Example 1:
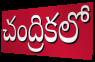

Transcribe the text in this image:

చంద్రికలో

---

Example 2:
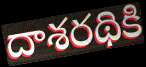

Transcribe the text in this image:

దాశరథికి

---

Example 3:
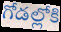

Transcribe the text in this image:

గోడల్లోకి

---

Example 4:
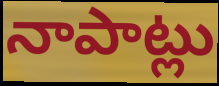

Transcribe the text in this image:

నాపాట్లు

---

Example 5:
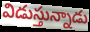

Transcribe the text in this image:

విడుస్తున్నాడు